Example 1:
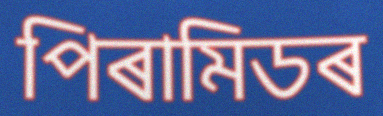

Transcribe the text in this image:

পিৰামিডৰ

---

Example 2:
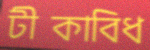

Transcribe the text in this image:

টীকাবিধ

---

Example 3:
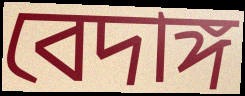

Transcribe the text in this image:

বেদাঙ্গ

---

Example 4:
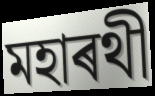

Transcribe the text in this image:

মহাৰথী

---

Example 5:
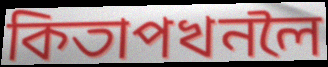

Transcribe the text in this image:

কিতাপখনলৈ